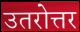
उतरोत्तर